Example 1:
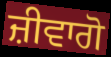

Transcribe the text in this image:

ਜ਼ੀਵਾਗੋ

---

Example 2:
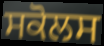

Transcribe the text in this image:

ਸਕੋਲਸ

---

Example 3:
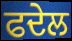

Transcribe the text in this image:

ਫਦੇਲ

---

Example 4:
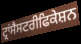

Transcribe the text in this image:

ਟ੍ਰਾਂਸੈਸਟਰੀਫਿਕੇਸ਼ਨ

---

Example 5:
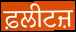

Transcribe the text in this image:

ਫ਼ਲੀਟਜ਼